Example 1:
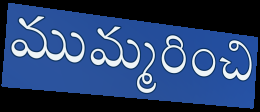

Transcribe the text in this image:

ముమ్మరించి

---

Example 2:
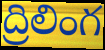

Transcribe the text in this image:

ద్రిలింగ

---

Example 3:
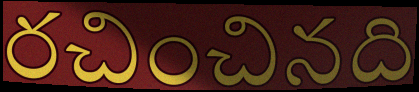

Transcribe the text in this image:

రచించినది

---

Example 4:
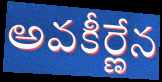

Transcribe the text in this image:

అవకీర్ణేన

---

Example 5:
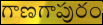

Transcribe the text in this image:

గాణగాపురం